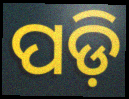
ପଡ଼ି